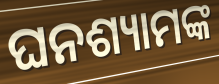
ଘନଶ୍ୟାମଙ୍କ